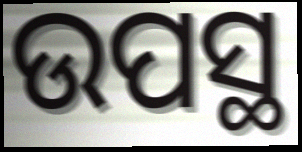
ଉପସ୍ଥ